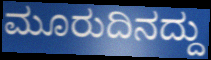
ಮೂರುದಿನದ್ದು